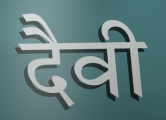
दैवी